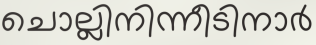
ചൊല്ലിനിന്നീടിനാർ